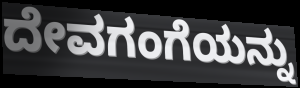
ದೇವಗಂಗೆಯನ್ನು